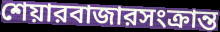
শেয়ারবাজারসংক্রান্ত